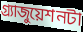
গ্র্যাজুয়েশনটা